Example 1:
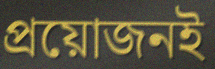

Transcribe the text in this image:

প্রয়োজনই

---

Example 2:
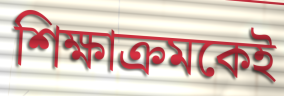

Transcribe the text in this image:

শিক্ষাক্রমকেই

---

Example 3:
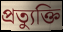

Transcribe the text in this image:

প্রত্যুক্তি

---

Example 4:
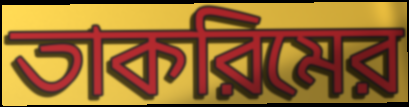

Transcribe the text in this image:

তাকরিমের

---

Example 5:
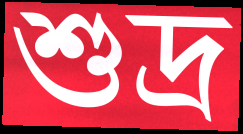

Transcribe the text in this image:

শুদ্র